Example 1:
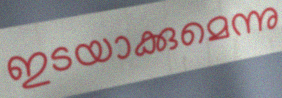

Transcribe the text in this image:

ഇടയാക്കുമെന്നു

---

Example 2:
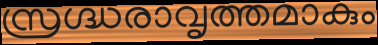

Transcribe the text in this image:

സ്രഗ്ദ്ധരാവൃത്തമാകും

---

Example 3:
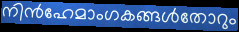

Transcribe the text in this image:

നിൻഹേമാംഗകങ്ങൾതോറും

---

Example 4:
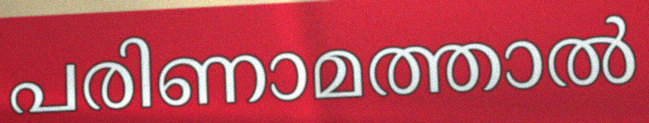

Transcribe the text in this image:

പരിണാമത്താൽ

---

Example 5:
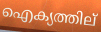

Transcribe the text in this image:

ഐക്യത്തില്